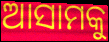
ଆସାମକୁ